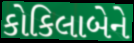
કોકિલાબેને